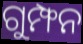
ଗୁମ୍ଫନ